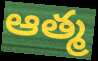
ఆత్మ